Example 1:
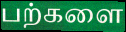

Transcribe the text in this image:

பற்களை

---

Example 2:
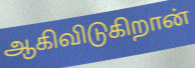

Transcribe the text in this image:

ஆகிவிடுகிறான்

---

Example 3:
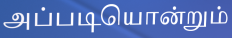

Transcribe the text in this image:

அப்படியொன்றும்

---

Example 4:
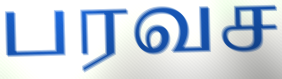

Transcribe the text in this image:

பரவச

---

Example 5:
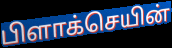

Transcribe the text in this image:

பிளாக்செயின்